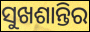
ସୁଖଶାନ୍ତିର